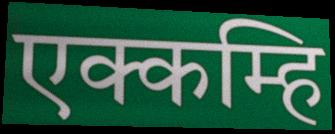
एक्कम्हि